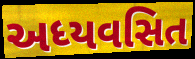
અધ્યવસિત